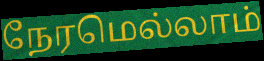
நேரமெல்லாம்